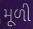
મૂળી